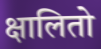
क्षालितो